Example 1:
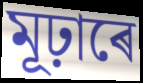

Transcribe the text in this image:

মূঢ়াৰে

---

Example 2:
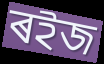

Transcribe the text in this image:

ৰইজ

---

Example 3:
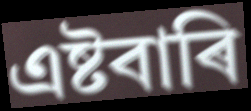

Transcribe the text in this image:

এষ্টবাৰি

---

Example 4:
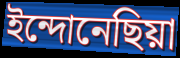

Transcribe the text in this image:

ইন্দোনেছিয়া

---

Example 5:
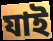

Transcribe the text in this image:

যাই